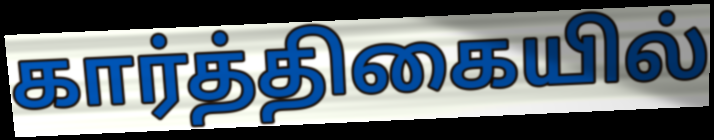
கார்த்திகையில்